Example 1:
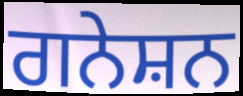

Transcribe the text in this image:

ਗਨੇਸ਼ਨ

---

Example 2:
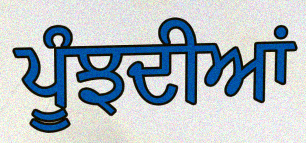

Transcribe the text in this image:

ਪੂੰਝਦੀਆਂ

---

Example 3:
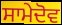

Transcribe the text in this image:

ਸਾਮੇਦੋਵ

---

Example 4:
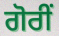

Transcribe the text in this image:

ਗੋਰੀਂ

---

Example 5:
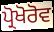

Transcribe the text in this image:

ਪ੍ਰੋਖੋਰੋਵ